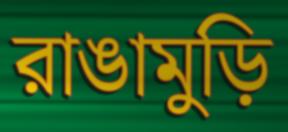
রাঙামুড়ি